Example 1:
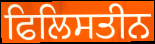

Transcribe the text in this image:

ਫਿਲਿਸਤੀਨ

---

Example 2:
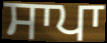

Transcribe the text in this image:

ਸਾਪਾ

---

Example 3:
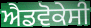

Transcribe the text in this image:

ਐਡਵੋਕੇਸੀ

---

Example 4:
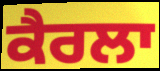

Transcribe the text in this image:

ਕੈਰਲਾ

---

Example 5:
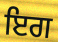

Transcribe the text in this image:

ਇਗ